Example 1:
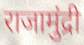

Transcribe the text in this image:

राजामुंद्री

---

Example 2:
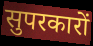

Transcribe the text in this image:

सुपरकारों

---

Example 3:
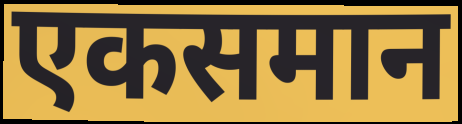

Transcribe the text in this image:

एकसमान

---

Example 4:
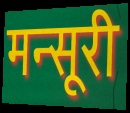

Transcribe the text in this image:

मन्सूरी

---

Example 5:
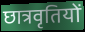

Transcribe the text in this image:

छात्रवृतियों